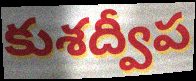
కుశద్వీప